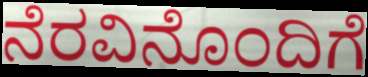
ನೆರವಿನೊಂದಿಗೆ